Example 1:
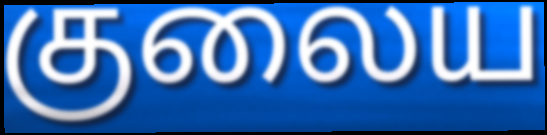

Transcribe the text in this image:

குலைய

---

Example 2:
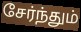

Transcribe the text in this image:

சேர்ந்தும்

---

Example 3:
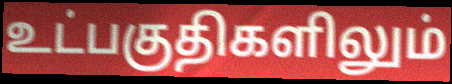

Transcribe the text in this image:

உட்பகுதிகளிலும்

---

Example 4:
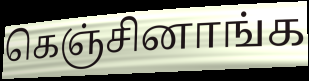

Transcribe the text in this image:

கெஞ்சினாங்க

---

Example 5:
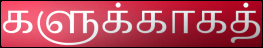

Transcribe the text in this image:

களுக்காகத்